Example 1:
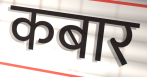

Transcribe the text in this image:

कबार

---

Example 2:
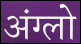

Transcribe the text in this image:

अंग्लो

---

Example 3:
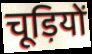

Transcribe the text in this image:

चूड़ियों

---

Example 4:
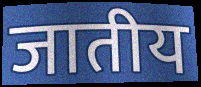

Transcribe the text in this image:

जातीय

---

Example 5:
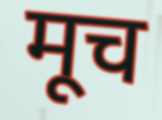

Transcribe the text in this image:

मूच